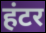
हंटर